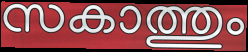
സകാത്തും